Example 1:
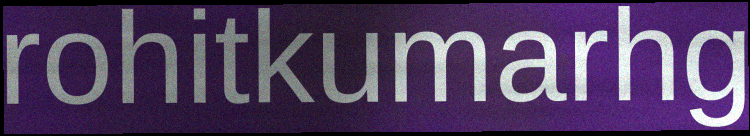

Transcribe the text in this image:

rohitkumarhg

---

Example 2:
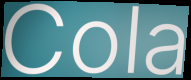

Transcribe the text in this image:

Cola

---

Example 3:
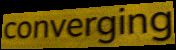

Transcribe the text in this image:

converging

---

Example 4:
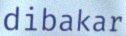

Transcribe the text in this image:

dibakar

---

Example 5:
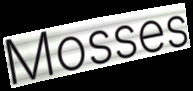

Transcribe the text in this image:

Mosses